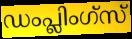
ഡംപ്ലിംഗ്സ്